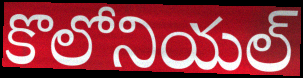
కొలోనియల్